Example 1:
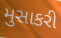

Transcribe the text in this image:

મુસાકરી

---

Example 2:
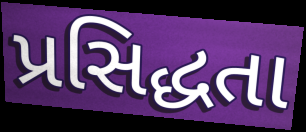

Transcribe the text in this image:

પ્રસિદ્ધતા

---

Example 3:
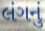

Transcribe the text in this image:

લંગનું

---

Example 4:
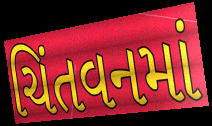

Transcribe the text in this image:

ચિંતવનમાં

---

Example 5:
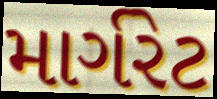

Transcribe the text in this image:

માર્ગરેટ